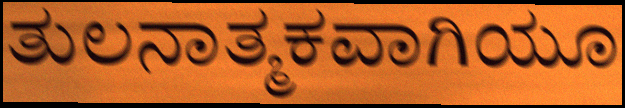
ತುಲನಾತ್ಮಕವಾಗಿಯೂ